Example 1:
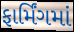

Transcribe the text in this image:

ફાર્મિંગમાં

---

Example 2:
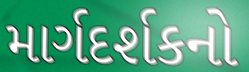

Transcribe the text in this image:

માર્ગદર્શકનો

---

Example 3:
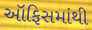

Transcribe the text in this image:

ઑફિસમાંથી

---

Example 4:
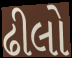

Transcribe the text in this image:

ઢીલો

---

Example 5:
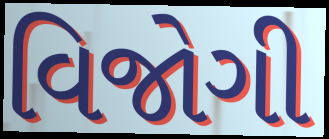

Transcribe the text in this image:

વિજોગી